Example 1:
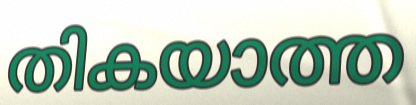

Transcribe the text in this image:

തികയാത്ത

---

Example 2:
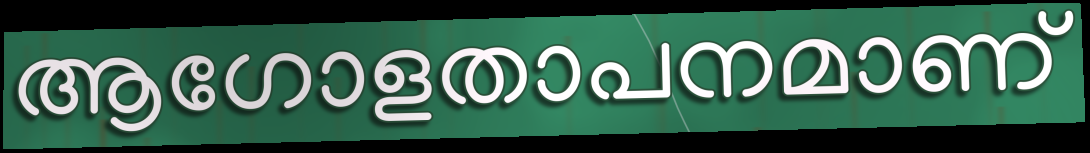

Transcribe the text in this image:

ആഗോളതാപനമാണ്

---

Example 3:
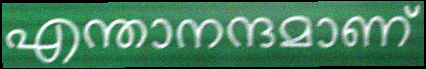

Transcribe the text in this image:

എന്താനന്ദമാണ്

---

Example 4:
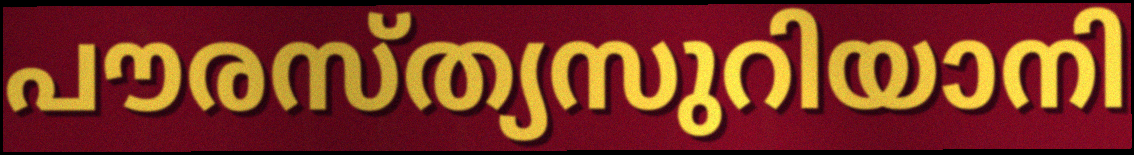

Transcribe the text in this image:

പൗരസ്ത്യസുറിയാനി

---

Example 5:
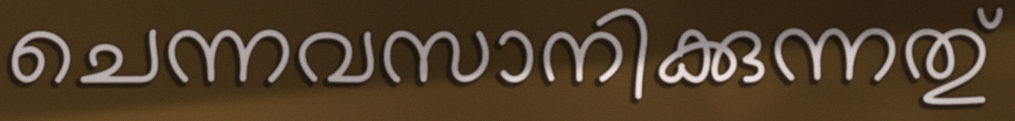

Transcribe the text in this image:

ചെന്നവസാനിക്കുന്നതു്